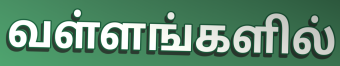
வள்ளங்களில்